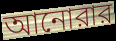
আনোরার